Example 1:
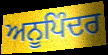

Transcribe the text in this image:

ਅਨੂਪਿੰਦਰ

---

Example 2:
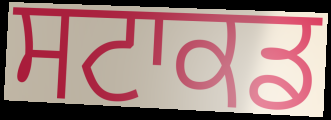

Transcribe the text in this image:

ਸਟਾਕਡ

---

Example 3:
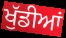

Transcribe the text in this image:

ਖੁੱਡੀਆਂ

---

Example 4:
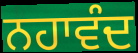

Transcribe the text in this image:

ਨਹਾਵੰਦ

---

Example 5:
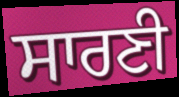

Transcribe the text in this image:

ਸਾਰਣੀ